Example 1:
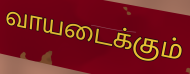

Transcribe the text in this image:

வாயடைக்கும்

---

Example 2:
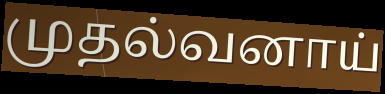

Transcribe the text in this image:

முதல்வனாய்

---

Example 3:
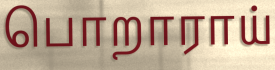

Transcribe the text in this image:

பொறாராய்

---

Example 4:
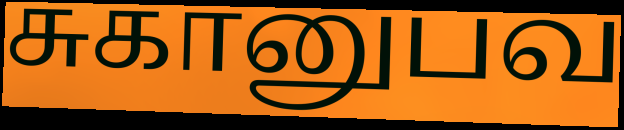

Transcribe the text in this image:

சுகானுபவ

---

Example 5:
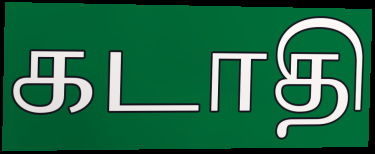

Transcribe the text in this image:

கடாதி